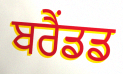
ਬਰੈਂਡਡ